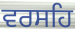
ਵਰਸਹਿ